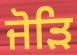
ਜੋੜਿ